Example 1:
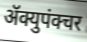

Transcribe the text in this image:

ॲक्युपंक्चर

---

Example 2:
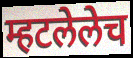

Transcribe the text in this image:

म्हटलेलेच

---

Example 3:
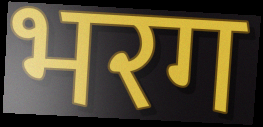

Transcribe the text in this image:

भरग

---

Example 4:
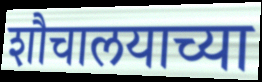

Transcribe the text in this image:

शौचालयाच्या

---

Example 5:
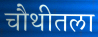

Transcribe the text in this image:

चौथीतला